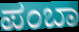
ಪಂಬಾ